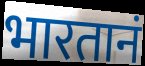
भारतानं